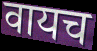
वायच